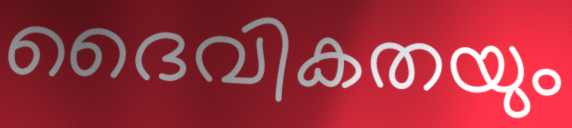
ദൈവികതയും